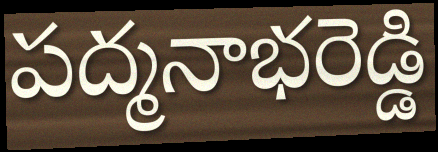
పద్మనాభరెడ్డి